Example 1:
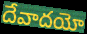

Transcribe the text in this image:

దేవాదయో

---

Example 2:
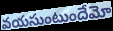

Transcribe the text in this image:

వయసుంటుందేమో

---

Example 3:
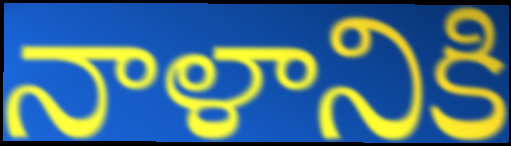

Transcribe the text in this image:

నాళానికి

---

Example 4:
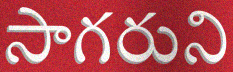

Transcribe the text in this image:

సాగరుని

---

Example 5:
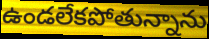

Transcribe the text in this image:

ఉండలేకపోతున్నాను